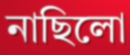
নাছিলো